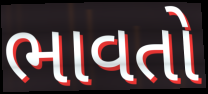
ભાવતો